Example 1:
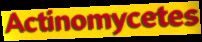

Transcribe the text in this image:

Actinomycetes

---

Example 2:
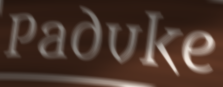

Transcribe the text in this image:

Paduke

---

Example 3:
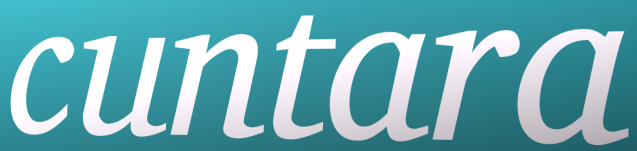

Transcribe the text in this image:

cuntara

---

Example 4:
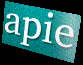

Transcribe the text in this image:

apie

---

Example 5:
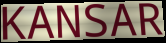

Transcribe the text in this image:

KANSAR